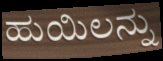
ಹುಯಿಲನ್ನು